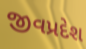
જીવપ્રદેશ